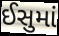
ઈસુમાં